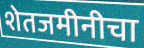
शेतजमीनीचा